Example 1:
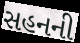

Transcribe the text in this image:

સહનની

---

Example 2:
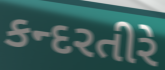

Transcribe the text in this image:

કન્દરતીરે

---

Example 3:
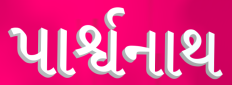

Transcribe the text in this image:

પાર્શ્વનાથ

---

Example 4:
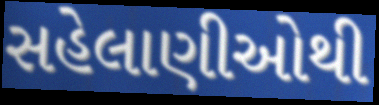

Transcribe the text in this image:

સહેલાણીઓથી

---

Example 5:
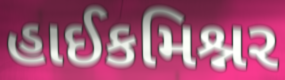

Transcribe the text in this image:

હાઈકમિશ્નર